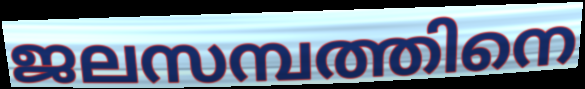
ജലസമ്പത്തിനെ